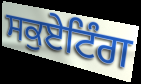
ਸਕੁਏਟਿੰਗ